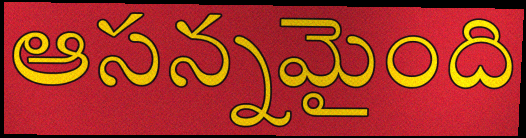
ఆసన్నమైంది